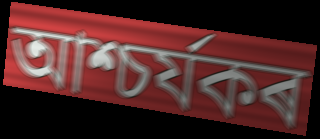
আশ্চৰ্যকৰ